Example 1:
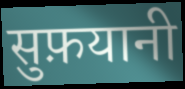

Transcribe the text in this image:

सुफ़यानी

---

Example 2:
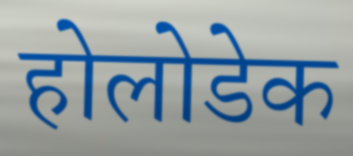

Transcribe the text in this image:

होलोडेक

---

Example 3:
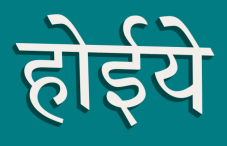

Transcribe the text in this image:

होईये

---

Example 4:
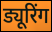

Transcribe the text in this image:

ड्यूरिंग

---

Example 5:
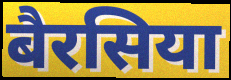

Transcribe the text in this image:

बैरसिया